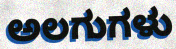
ಅಲಗುಗಳು